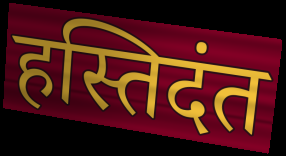
हस्तिदंत